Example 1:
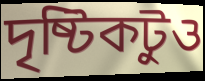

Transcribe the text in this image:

দৃষ্টিকটুও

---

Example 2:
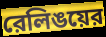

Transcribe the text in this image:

রেলিঙয়ের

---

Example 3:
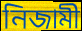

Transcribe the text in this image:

নিজামী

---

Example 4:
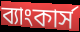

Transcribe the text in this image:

ব্যাংকার্স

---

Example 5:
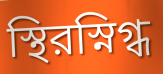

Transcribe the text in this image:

স্থিরস্নিগ্ধ